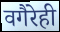
वगैरेही